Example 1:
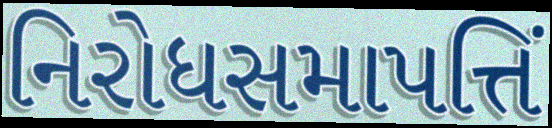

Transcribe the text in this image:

નિરોધસમાપત્તિં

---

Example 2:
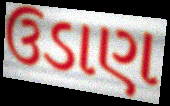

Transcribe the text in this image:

ઉડાણ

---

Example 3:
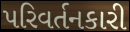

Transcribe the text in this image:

પરિવર્તનકારી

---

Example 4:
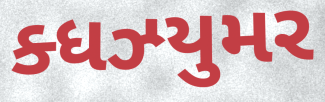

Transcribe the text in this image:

ક્ધઝ્યુમર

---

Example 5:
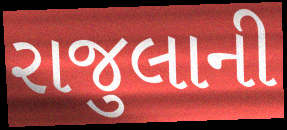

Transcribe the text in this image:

રાજુલાની